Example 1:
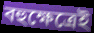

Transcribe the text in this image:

বহুক্ষেত্রেই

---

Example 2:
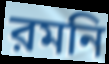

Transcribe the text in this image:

রমনি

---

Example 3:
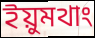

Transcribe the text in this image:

ইয়ুমথাং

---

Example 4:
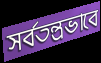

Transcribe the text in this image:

সর্বতন্ত্রভাবে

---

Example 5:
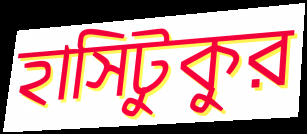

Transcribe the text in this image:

হাসিটুকুর